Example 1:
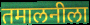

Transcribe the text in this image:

तमालनीला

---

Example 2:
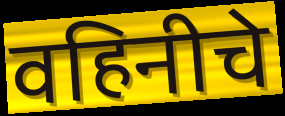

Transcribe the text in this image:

वहिनीचे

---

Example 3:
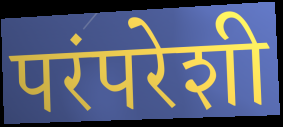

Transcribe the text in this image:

परंपरेशी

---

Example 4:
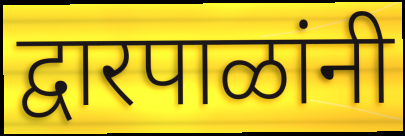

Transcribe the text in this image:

द्वारपाळांनी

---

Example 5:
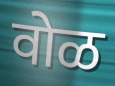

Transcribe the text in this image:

वोळ